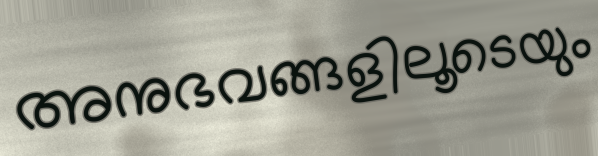
അനുഭവങ്ങളിലൂടെയും